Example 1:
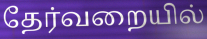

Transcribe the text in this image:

தேர்வறையில்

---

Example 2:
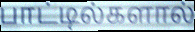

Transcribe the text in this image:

பாட்டில்களால்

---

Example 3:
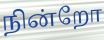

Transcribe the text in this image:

நின்றோ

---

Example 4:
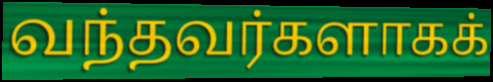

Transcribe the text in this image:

வந்தவர்களாகக்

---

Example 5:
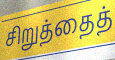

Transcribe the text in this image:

சிறுத்தைத்